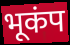
भूकंप